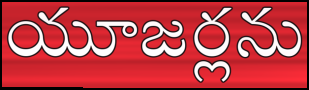
యూజర్లను